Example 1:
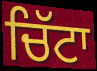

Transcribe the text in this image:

ਚਿੱਟਾ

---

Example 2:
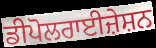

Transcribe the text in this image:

ਡੀਪੋਲਰਾਈਜ਼ੇਸ਼ਨ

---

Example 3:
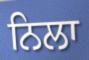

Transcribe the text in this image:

ਨਿਲਾ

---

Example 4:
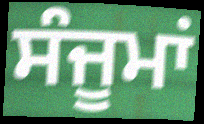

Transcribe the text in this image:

ਸੰਜੂਮਾਂ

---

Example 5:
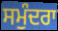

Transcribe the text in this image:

ਸਮੁੰਦਰਾ